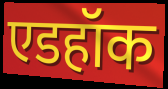
एडहॉक